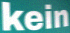
kein